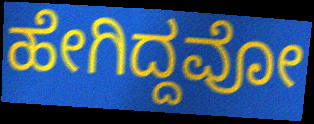
ಹೇಗಿದ್ದವೋ